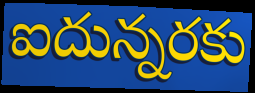
ఐదున్నరకు